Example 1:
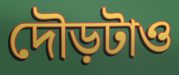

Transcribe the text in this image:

দৌড়টাও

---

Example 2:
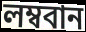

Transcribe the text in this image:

লম্ববান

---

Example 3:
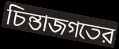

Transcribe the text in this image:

চিন্তাজগতের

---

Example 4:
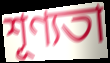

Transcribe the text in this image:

শূণ্যতা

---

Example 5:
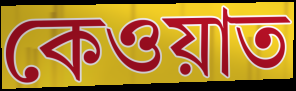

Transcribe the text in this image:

কেওয়াত